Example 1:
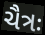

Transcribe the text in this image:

ચૈત્રઃ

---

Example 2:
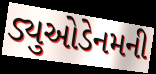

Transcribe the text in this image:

ડ્યુઓડેનમની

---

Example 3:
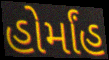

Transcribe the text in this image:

હોર્માંહ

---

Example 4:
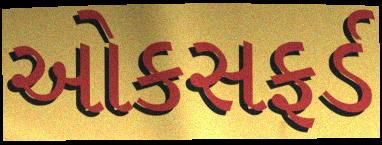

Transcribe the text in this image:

ઓકસફર્ડ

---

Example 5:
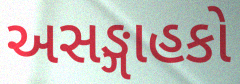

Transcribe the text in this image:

અસઙ્ગાહકો